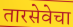
तारसेवेचा